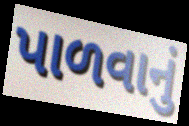
પાળવાનું